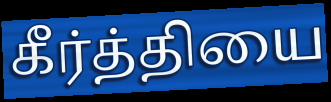
கீர்த்தியை